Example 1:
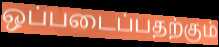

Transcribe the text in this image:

ஒப்படைப்பதற்கும்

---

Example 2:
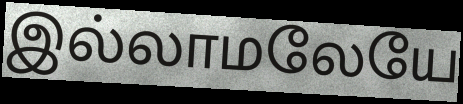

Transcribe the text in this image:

இல்லாமலேயே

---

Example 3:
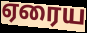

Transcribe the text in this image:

ஏரைய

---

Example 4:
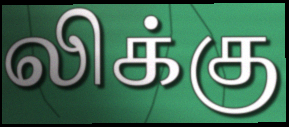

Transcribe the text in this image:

லிக்கு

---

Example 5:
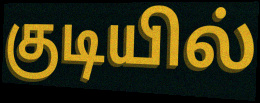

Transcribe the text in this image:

குடியில்